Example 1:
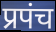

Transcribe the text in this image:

प्रपंच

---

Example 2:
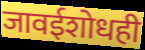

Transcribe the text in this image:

जावईशोधही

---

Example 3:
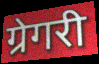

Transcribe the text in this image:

ग्रेगरी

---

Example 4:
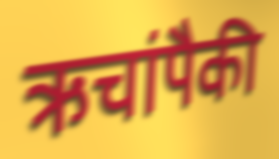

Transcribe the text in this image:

ऋचांपैकी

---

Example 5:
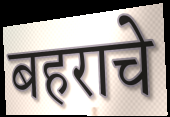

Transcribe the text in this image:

बहराचे